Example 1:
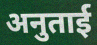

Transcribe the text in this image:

अनुताई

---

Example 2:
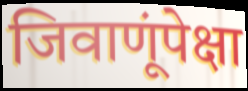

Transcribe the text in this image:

जिवाणूंपेक्षा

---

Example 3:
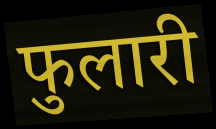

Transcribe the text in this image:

फुलारी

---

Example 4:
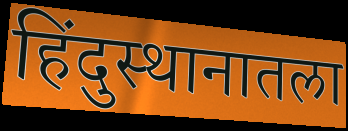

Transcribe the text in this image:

हिंदुस्थानातला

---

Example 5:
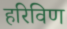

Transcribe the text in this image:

हरिविण